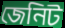
জেনিট